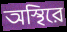
অস্থিরে